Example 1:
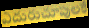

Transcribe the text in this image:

ఎదురుచూపులకే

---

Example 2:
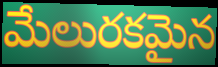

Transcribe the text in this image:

మేలురకమైన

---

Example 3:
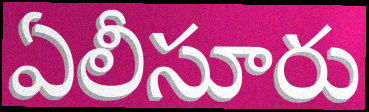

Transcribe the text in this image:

ఏలీసూరు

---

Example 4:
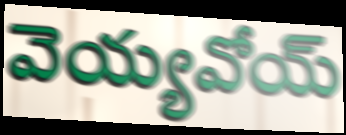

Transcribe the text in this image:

వెయ్యవోయ్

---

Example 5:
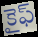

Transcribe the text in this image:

కైఫ్